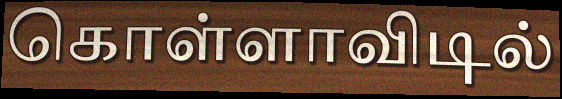
கொள்ளாவிடில்